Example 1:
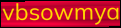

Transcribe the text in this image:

vbsowmya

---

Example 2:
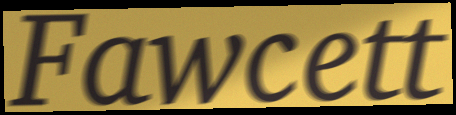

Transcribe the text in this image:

Fawcett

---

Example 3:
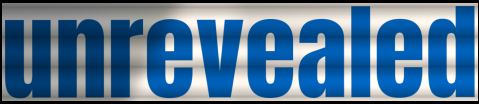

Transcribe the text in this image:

unrevealed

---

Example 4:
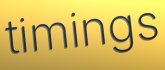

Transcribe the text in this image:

timings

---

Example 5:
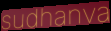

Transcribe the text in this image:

sudhanva